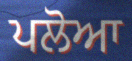
ਪਲੋਆ